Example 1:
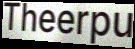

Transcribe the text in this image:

Theerpu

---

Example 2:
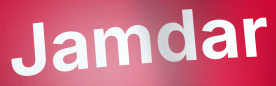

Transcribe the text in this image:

Jamdar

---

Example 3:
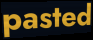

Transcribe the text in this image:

pasted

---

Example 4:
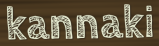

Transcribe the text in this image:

kannaki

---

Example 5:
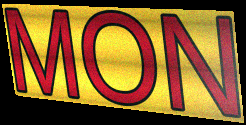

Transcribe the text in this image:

MON